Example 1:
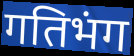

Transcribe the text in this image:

गतिभंग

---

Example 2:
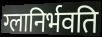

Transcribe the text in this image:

ग्लानिर्भवति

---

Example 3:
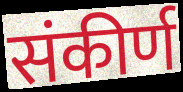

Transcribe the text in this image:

संकीर्ण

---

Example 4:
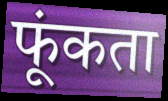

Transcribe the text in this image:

फूंकता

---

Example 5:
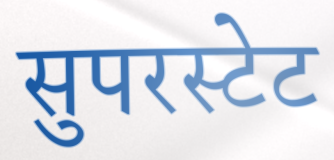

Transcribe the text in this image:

सुपरस्टेट